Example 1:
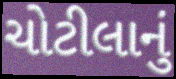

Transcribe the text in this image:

ચોટીલાનું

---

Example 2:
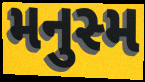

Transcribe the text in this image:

મનુસ્મ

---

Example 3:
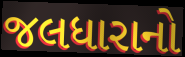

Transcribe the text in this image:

જલધારાનો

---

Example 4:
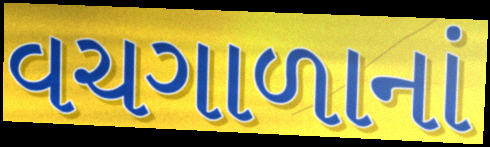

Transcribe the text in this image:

વચગાળાનાં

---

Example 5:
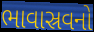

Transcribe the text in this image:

ભાવાસ્રવનો